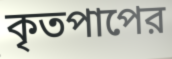
কৃতপাপের